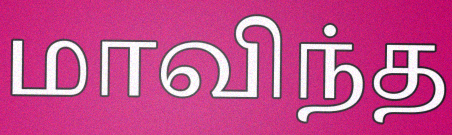
மாவிந்த